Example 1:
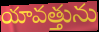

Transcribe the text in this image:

యావత్తును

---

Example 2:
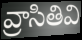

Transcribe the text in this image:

వ్రాసితివి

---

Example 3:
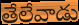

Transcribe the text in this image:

తేలేవాడు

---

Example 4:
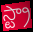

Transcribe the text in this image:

స్ట్రా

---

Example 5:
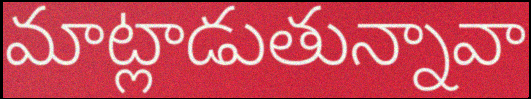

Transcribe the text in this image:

మాట్లాడుతున్నావా